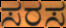
ಸರಸ